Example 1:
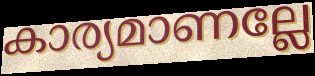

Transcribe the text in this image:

കാര്യമാണല്ലേ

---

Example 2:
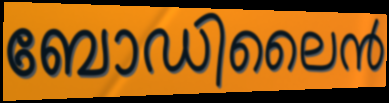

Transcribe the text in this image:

ബോഡിലൈൻ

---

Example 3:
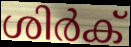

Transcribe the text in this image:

ശിർക്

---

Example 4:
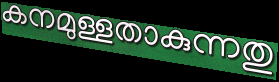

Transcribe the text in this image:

കനമുള്ളതാകുന്നതു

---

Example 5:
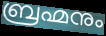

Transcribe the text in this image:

ബ്രഹ്മനും